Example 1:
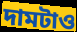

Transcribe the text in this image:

দামটাও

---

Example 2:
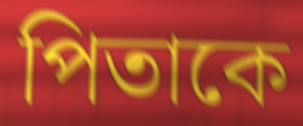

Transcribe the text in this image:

পিতাকে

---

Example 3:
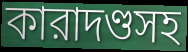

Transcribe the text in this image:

কারাদণ্ডসহ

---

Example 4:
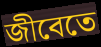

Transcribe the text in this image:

জীবেতে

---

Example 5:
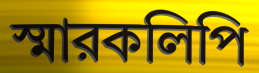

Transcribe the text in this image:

স্মারকলিপি